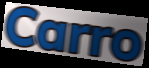
Carro